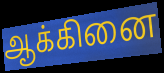
ஆக்கினை